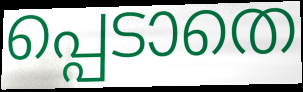
പ്പെടാതെ